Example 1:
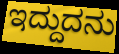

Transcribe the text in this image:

ಇದ್ದುದನು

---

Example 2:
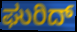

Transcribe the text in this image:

ಘುರಿದ್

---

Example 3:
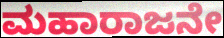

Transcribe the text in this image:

ಮಹಾರಾಜನೇ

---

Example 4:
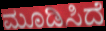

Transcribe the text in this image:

ಮೂಡಿಸಿದೆ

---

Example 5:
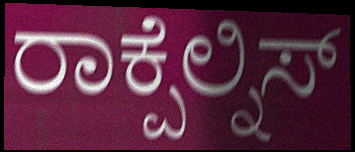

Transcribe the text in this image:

ರಾಕ್ಪೆಲ್ನಿಸ್